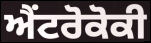
ਐਂਟਰੋਕੋਕੀ